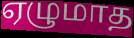
ஏழுமாத